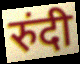
रुंदी